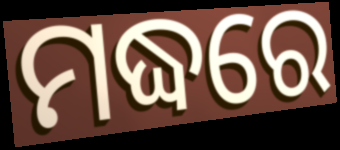
ମଦ୍ଧରେ